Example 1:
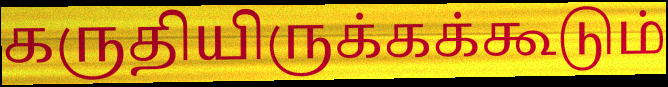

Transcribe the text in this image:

கருதியிருக்கக்கூடும்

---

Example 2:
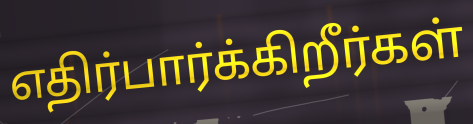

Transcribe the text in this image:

எதிர்பார்க்கிறீர்கள்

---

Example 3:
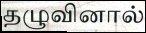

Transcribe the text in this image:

தழுவினால்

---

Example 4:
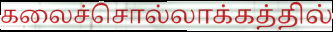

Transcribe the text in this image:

கலைச்சொல்லாக்கத்தில்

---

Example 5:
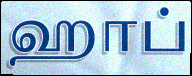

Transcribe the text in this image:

ஹாப்